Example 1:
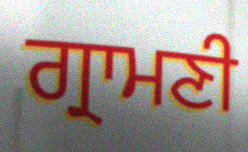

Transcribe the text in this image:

ਗ੍ਰਾਮਣੀ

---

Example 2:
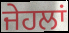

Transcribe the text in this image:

ਜੇਹਲਾਂ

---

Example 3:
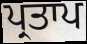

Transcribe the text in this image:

ਪ੍ਰਤਾਪ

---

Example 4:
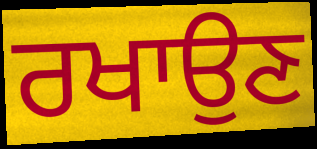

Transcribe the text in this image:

ਰਖਾਉਣ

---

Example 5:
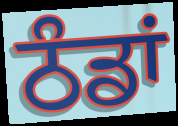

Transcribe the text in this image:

ਠੰਡਾਂ